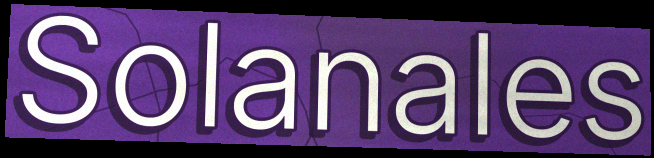
Solanales